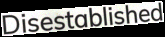
Disestablished